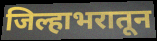
जिल्हाभरातून